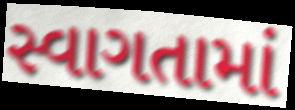
સ્વાગતામાં